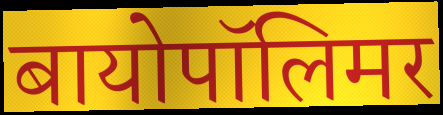
बायोपॉलिमर